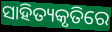
ସାହିତ୍ୟକୃତିରେ